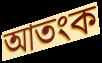
আতংক